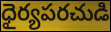
ధైర్యపరచుడి